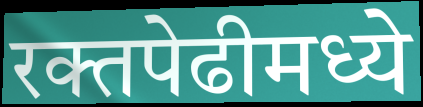
रक्तपेढीमध्ये